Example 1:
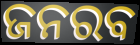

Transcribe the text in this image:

ଜନରବ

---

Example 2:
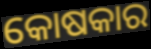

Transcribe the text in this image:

କୋଷକାର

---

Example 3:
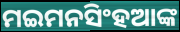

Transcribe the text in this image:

ମଇମନସିଂହଆଙ୍କ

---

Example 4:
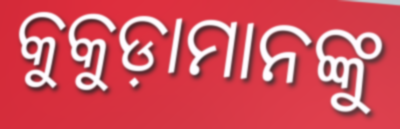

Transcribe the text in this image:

କୁକୁଡ଼ାମାନଙ୍କୁ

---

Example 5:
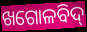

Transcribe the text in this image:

ଖଗୋଳବିଦ୍